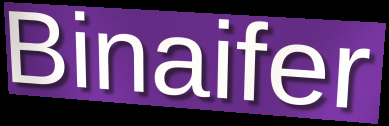
Binaifer